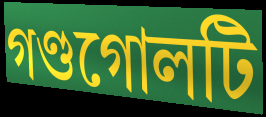
গণ্ডগোলটি